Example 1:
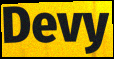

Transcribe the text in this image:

Devy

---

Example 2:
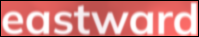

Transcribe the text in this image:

eastward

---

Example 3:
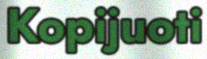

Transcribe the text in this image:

Kopijuoti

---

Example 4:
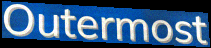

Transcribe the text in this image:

Outermost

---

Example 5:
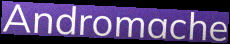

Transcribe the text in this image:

Andromache